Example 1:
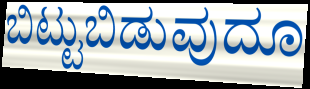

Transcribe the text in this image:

ಬಿಟ್ಟುಬಿಡುವುದೂ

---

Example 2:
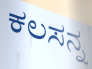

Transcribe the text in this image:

ಕಲಸನ್ನ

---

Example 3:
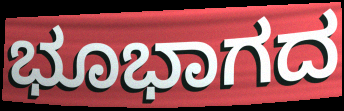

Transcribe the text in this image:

ಭೂಭಾಗದ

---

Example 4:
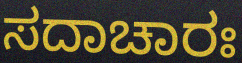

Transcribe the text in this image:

ಸದಾಚಾರಃ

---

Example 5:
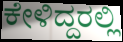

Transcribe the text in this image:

ಕೇಳಿದ್ದರಲ್ಲಿ